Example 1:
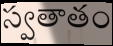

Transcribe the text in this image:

స్వతాతం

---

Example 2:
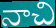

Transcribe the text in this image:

నాచి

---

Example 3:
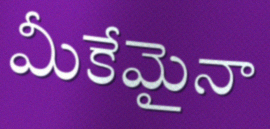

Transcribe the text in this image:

మీకేమైనా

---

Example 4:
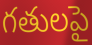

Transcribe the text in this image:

గతులపై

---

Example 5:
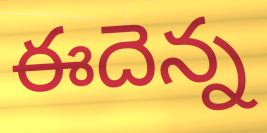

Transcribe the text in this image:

ఈదెన్న